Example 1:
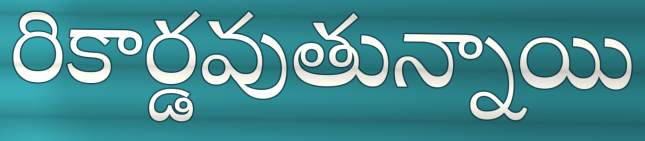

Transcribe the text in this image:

రికార్డవుతున్నాయి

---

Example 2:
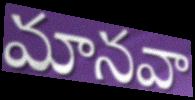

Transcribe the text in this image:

మానవా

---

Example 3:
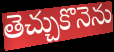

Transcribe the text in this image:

తెచ్చుకొనెను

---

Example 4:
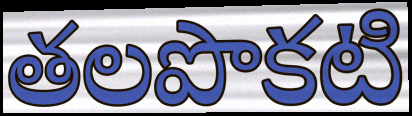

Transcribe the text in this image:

తలపొకటి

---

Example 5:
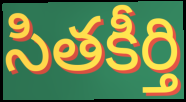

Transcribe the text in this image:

సితకీర్తి